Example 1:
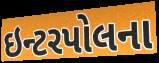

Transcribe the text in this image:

ઇન્ટરપોલના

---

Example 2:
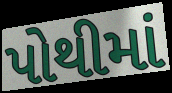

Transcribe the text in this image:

પોથીમાં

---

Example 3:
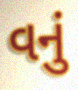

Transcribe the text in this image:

વનું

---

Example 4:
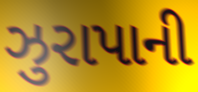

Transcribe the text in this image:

ઝુરાપાની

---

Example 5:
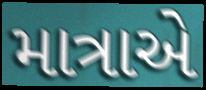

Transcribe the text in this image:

માત્રાએ